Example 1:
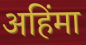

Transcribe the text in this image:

अहिंमा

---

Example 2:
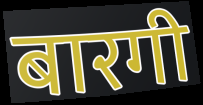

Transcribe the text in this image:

बारगी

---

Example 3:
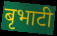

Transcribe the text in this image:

बृभाटी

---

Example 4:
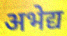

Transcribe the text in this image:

अभेद्य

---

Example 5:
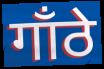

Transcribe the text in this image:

गाँठे